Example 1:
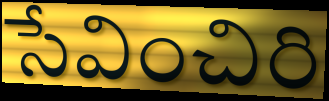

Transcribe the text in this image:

సేవించిరి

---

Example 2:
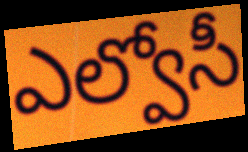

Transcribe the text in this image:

ఎల్వోసీ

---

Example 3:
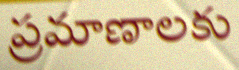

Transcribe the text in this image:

ప్రమాణాలకు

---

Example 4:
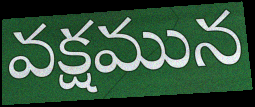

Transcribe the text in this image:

వక్షమున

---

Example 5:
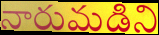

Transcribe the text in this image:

నారుమడిని